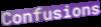
Confusions